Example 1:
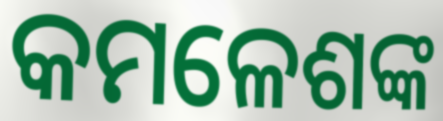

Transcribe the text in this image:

କମଳେଶଙ୍କ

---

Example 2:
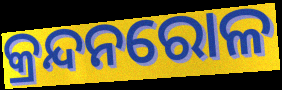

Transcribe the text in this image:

କ୍ରନ୍ଦନରୋଳ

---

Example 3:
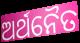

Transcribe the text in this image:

ଅର୍ଥନୈତ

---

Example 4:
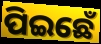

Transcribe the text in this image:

ପିଇଛେଁ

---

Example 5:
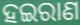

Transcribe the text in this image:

ହଇରାଣ